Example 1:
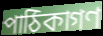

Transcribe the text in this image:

পাঠিকাগণ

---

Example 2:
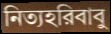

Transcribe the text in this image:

নিত্যহরিবাবু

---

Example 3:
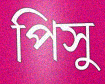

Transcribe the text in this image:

পিসু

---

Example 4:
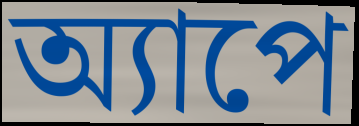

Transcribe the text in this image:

অ্যাপে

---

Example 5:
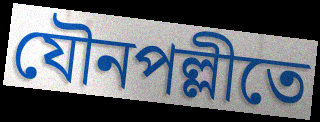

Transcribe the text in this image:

যৌনপল্লীতে